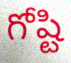
గోష్టి